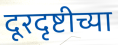
दूरदृष्टीच्या